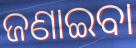
ଜଣାଇବା